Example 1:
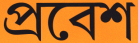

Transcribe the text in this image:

প্ৰবেশ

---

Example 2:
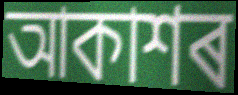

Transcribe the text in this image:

আকাশৰ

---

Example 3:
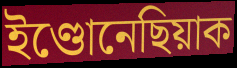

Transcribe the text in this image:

ইণ্ডোনেছিয়াক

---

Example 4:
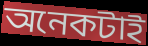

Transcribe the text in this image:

অনেকটাই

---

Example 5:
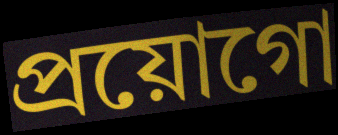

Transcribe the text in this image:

প্ৰয়োগো